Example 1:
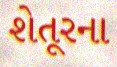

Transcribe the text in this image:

શેતૂરના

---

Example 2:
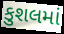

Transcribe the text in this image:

કુશલમાં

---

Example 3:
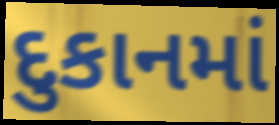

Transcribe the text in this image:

દુકાનમાં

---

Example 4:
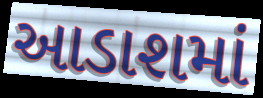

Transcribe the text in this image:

આડાશમાં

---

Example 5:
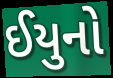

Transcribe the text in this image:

ઈયુનો